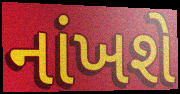
નાંખશે